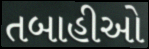
તબાહીઓ